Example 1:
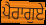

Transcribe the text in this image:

ਪੈਰਾਗੁਏ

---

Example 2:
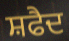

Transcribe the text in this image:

ਸ਼ਫੈਦ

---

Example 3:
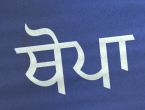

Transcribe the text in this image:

ਥੋਪਾ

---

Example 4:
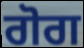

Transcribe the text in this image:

ਗੋਗ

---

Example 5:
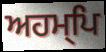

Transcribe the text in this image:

ਅਹਮ੍ਪਿ